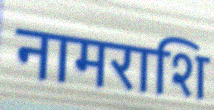
नामराशि